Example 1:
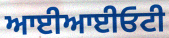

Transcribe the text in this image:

ਆਈਆਈਓਟੀ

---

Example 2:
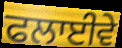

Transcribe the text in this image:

ਫਲਾਈਵੇ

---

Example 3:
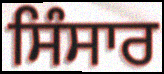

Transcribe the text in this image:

ਸਿੰਸਾਰ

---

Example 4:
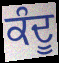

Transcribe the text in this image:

ਕੰਦੂ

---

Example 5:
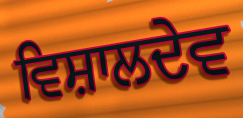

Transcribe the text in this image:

ਵਿਸ਼ਾਲਦੇਵ